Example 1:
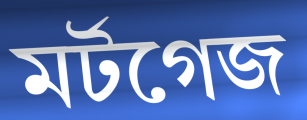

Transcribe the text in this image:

মর্টগেজ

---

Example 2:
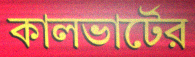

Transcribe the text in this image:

কালভার্টের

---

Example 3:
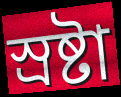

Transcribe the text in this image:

স্রষ্টা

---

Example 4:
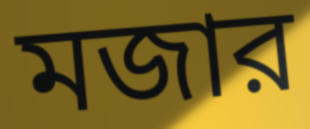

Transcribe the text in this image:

মজার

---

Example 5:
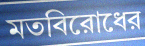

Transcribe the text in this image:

মতবিরোধের